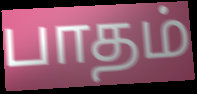
பாதம்